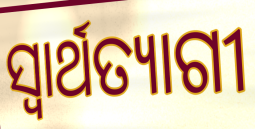
ସ୍ୱାର୍ଥତ୍ୟାଗୀ